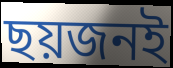
ছয়জনই